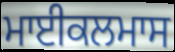
ਮਾਈਕਲਮਾਸ